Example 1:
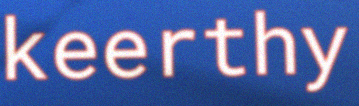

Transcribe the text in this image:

keerthy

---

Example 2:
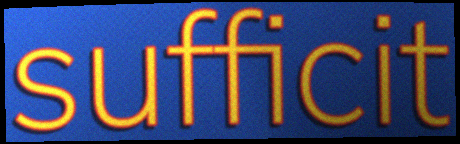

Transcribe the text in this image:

sufficit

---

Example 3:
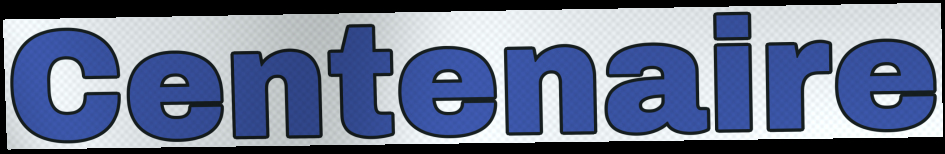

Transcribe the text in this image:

Centenaire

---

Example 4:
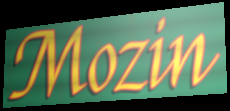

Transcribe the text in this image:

Mozin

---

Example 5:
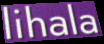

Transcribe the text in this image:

lihala